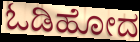
ಓಡಿಹೋದ